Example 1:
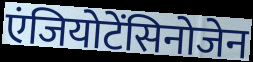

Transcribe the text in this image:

एंजियोटेंसिनोजेन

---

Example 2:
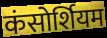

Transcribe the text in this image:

कंसोर्शियम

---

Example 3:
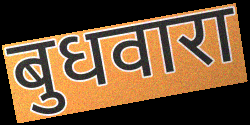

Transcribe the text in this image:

बुधवारा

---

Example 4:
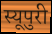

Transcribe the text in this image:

स्यूपुरी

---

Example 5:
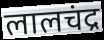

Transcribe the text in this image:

लालचंद्र